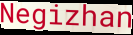
Negizhan